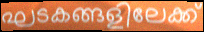
ഘടകങ്ങളിലേക്ക്